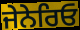
ਜੇਨੇਰਿਓ